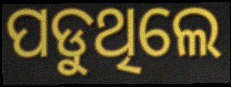
ପଡୁଥିଲେ